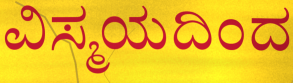
ವಿಸ್ಮಯದಿಂದ